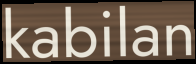
kabilan